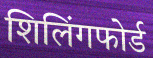
शिलिंगफोर्ड